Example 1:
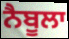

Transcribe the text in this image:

ਨੈਬੂਲਾ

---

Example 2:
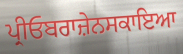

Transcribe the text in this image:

ਪ੍ਰੀਓਬਰਾਜ਼ੇਨਸਕਾਇਆ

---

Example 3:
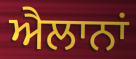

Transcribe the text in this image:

ਐਲਾਨਾਂ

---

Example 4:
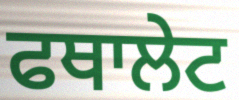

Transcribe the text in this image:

ਫਥਾਲੇਟ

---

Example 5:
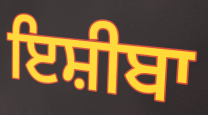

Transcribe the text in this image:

ਇਸ਼ੀਬਾ